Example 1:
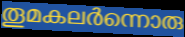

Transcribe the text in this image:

തൂമകലർന്നൊരു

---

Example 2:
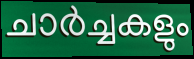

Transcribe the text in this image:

ചാർച്ചകളും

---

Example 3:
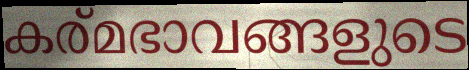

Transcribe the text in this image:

കര്മഭാവങ്ങളുടെ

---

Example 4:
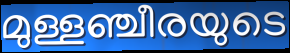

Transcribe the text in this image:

മുള്ളഞ്ചീരയുടെ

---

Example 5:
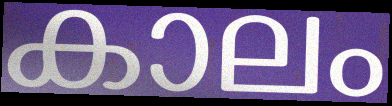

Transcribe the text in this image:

കാലം